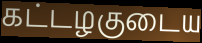
கட்டழகுடைய